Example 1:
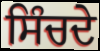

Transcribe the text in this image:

ਸਿੰਚਦੇ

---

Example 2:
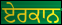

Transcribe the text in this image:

ਏਰਕਾਨ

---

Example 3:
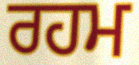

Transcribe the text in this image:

ਰਹਮ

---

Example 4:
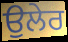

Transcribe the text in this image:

ਉਲੇਰ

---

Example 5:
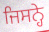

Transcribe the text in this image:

ਜਿਸਨ੍ਹੇ